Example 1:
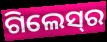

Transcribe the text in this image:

ଗିଲେସ୍‍ର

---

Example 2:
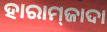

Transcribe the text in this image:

ହାରାମ୍‌ଜାଦା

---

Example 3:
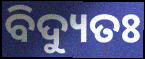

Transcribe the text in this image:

ବିଦ୍ୟୁତଃ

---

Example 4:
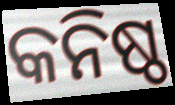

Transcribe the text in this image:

କନିଷ୍ଠ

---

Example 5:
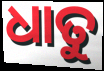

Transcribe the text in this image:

ଧାତୁ